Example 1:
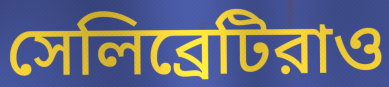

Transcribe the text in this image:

সেলিব্রেটিরাও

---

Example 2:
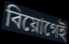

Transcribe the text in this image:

বিয়োগেই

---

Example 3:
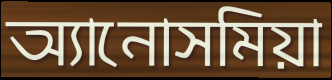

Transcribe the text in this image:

অ্যানোসমিয়া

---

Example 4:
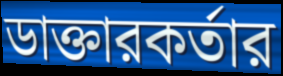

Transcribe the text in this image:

ডাক্তারকর্তার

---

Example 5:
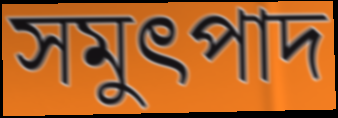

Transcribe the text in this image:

সমুৎপাদ